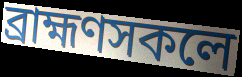
ব্ৰাহ্মণসকলে